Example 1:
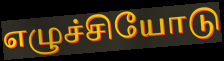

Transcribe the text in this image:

எழுச்சியோடு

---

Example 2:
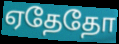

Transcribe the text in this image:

ஏதேதோ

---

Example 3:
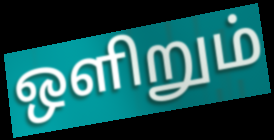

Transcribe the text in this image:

ஒளிறும்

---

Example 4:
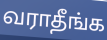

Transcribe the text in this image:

வராதீங்க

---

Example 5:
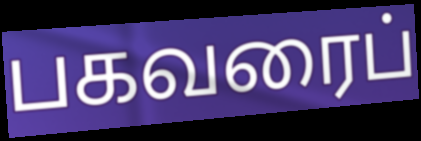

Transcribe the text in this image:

பகவரைப்